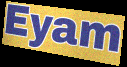
Eyam